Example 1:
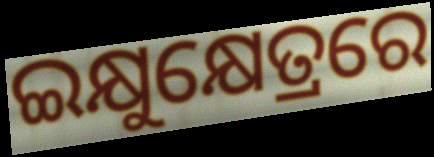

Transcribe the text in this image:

ଇକ୍ଷୁକ୍ଷେତ୍ରରେ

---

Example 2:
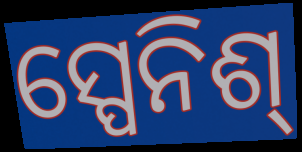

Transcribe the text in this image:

ସ୍ପେନିଶ୍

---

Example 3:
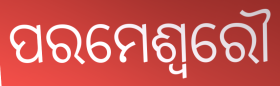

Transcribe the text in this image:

ପରମେଶ୍ଵରୌ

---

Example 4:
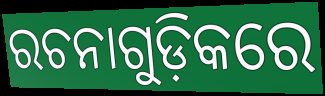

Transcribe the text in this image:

ରଚନାଗୁଡ଼ିକରେ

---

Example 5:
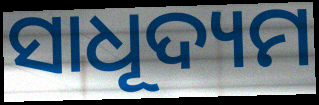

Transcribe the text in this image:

ସାଧୂଦ୍ୟମ